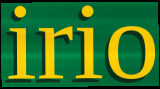
irio